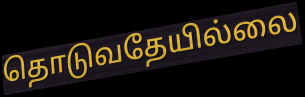
தொடுவதேயில்லை